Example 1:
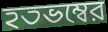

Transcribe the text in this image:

হতভম্বের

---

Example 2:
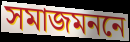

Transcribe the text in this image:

সমাজমননে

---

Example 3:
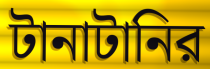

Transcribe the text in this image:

টানাটানির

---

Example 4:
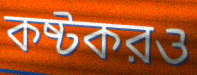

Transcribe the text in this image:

কষ্টকরও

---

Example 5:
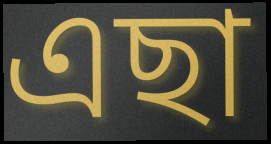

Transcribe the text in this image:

এছা